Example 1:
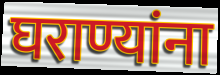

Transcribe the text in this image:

घराण्यांना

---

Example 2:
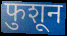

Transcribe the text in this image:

फुशून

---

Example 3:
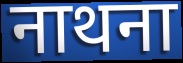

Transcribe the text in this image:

नाथना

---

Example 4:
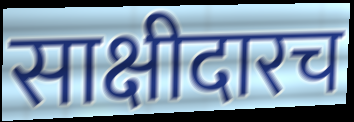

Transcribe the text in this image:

साक्षीदारच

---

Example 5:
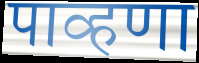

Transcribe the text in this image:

पाव्हणा